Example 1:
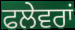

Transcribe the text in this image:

ਫਲੇਵਰਾਂ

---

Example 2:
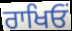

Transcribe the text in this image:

ਰਾਖਿਓਂ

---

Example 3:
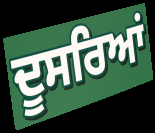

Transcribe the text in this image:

ਦੂਸਰਿਆਂ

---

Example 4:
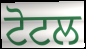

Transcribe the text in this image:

ਟੋਟਲ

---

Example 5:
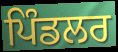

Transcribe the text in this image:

ਪਿੰਡਲਰ